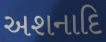
અશનાદિ